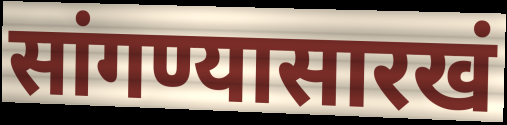
सांगण्यासारखं